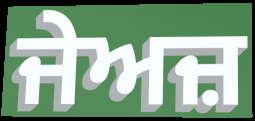
ਜੇਅਜ਼